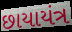
છાયાયંત્ર